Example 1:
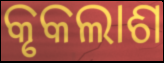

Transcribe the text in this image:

କୃକଲାଶ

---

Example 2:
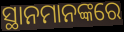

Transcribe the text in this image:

ସ୍ଥାନମାନଙ୍କରେ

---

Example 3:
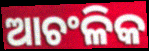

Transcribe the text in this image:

ଆଚଂଳିକ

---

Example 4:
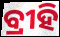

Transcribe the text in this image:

ବ୍ରୀହି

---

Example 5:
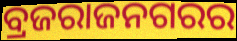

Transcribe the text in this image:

ବ୍ରଜରାଜନଗରର